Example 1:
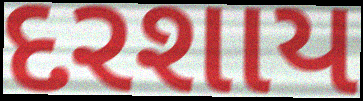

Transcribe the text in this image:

દરશાય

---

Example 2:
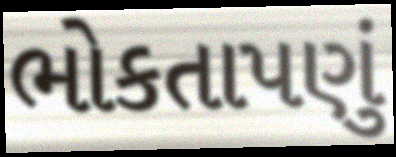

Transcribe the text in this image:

ભોકતાપણું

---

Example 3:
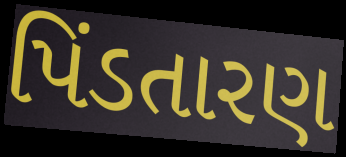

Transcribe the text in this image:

પિંડતારણ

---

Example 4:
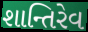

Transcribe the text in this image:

શાન્તિરેવ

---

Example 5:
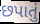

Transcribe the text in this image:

છપાતું